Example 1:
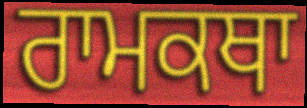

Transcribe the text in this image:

ਰਾਮਕਥਾ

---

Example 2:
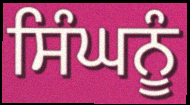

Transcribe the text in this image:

ਸਿੰਘਨੂੰ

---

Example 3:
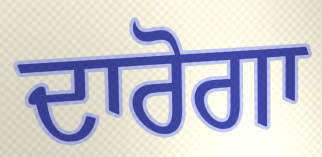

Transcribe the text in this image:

ਦਾਰੋਗਾ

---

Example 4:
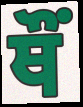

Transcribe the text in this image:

ਥੌਂ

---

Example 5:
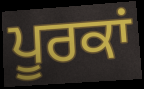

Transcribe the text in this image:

ਪੂਰਕਾਂ